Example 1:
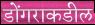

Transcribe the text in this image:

डोंगराकडील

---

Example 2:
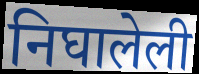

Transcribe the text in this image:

निघालेली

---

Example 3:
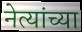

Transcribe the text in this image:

नेत्यांच्या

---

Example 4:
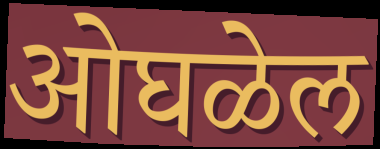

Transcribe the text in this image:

ओघळेल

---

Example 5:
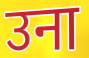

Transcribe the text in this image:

उना